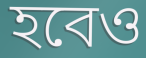
হবেও